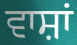
ਵਾਸ਼ਾਂ